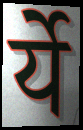
र्ये